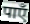
पाएँ